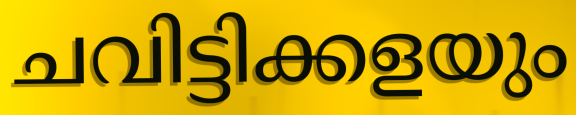
ചവിട്ടിക്കളയും